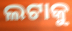
ଲଟାକୁ